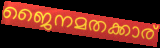
ജൈനമതക്കാര്